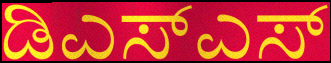
ಡಿಎಸ್ಎಸ್